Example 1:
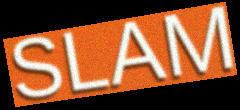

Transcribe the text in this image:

SLAM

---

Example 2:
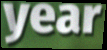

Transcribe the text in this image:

year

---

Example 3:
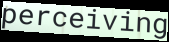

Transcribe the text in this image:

perceiving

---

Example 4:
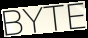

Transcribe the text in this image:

BYTE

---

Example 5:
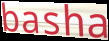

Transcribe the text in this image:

basha